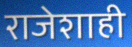
राजेशाही